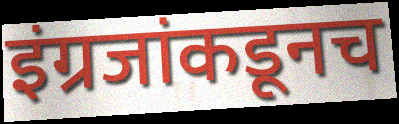
इंग्रजांकडूनच